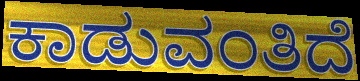
ಕಾಡುವಂತಿದೆ